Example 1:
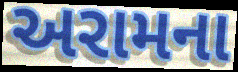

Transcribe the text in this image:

અરામના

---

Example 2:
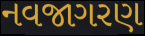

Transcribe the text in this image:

નવજાગરણ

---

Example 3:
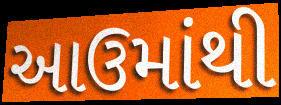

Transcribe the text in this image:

આઉમાંથી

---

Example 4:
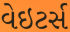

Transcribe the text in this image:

વેઇટર્સ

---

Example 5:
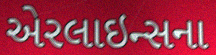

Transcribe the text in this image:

એરલાઇન્સના